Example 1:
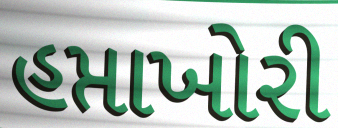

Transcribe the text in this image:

હપ્તાખોરી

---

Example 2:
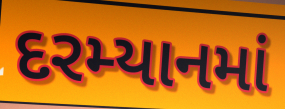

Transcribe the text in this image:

દરમ્યાનમાં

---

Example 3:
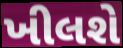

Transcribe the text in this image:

ખીલશે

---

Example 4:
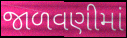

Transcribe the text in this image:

જાળવણીમાં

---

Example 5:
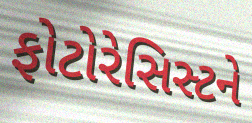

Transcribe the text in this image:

ફોટોરેસિસ્ટને